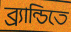
ব্র্যান্ডিতে